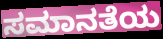
ಸಮಾನತೆಯ